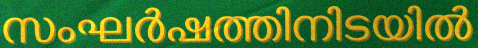
സംഘർഷത്തിനിടയിൽ